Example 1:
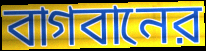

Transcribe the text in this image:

বাগবানের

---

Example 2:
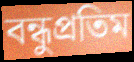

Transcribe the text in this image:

বন্ধুপ্রতিম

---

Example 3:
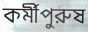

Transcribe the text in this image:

কর্মীপুরুষ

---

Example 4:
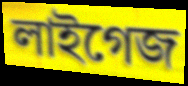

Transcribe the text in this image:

লাইগেজ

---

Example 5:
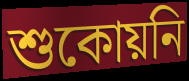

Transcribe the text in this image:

শুকোয়নি